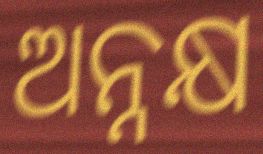
ଅନ୍ନକ୍ଷ